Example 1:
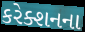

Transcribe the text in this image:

કરેક્શનના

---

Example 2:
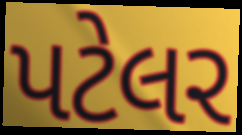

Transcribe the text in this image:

પટેલર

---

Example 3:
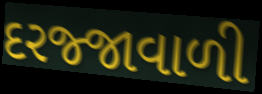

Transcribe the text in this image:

દરજ્જાવાળી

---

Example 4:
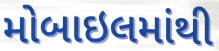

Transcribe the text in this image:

મોબાઇલમાંથી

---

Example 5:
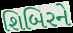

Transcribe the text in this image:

શિબિરને